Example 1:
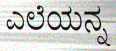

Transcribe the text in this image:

ಎಲೆಯನ್ನ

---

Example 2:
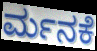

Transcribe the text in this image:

ರ್ಮನಕೆ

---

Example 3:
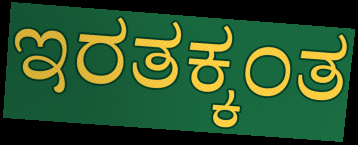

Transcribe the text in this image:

ಇರತಕ್ಕಂತ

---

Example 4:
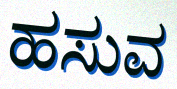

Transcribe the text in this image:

ಹಸುವ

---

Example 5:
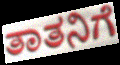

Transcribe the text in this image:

ತಾತನಿಗೆ